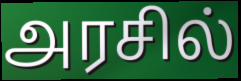
அரசில்